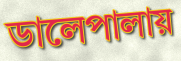
ডালেপালায়